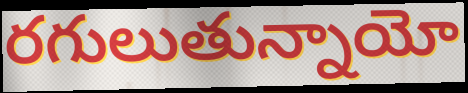
రగులుతున్నాయో